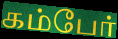
கம்பேர்